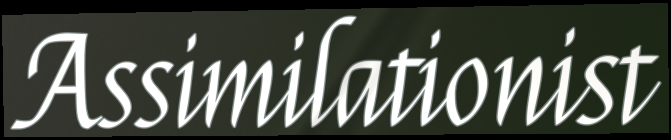
Assimilationist